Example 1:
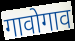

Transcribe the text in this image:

गावोगाव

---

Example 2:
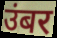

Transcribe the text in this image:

उंबर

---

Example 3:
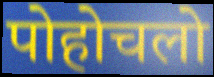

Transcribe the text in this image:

पोहोचलो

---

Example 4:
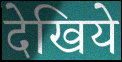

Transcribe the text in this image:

देखिये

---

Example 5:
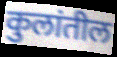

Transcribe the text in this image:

कुलांतील